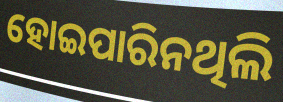
ହୋଇପାରିନଥିଲି